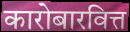
कारोबारवित्त